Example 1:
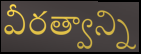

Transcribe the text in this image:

వీరత్వాన్ని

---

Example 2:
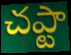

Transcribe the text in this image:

చఎ్టా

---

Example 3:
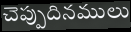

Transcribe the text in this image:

చెప్పుదినములు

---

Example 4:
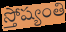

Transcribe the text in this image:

స్తోష్యంతి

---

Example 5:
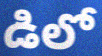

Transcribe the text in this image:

డిలో